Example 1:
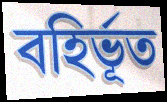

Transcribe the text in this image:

বহিৰ্ভূত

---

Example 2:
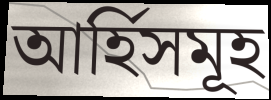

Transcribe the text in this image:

আৰ্হিসমূহ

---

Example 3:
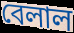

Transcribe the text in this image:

বেলাল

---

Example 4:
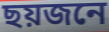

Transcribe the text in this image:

ছয়জনে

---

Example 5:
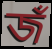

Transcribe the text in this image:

জঁ